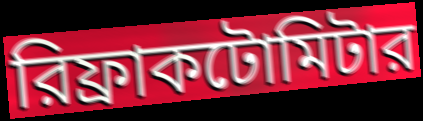
রিফ্রাকটোমিটার